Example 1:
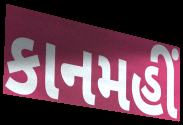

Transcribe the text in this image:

કાનમહીં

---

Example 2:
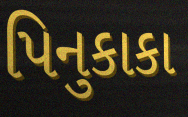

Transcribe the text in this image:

પિનુકાકા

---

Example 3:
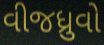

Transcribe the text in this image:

વીજધ્રુવો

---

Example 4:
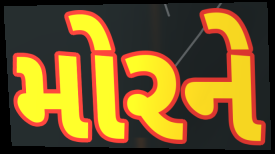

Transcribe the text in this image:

મોરને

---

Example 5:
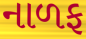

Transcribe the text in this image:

નાળફ